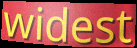
widest